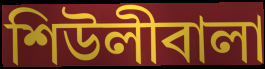
শিউলীবালা